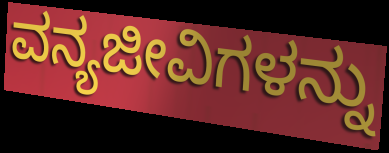
ವನ್ಯಜೀವಿಗಳನ್ನು